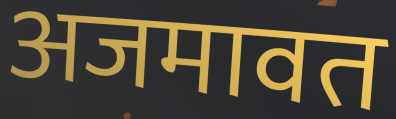
अजमावत